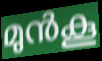
മുൻകൂ